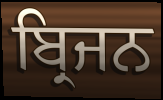
ਬ੍ਰਿਜਨ